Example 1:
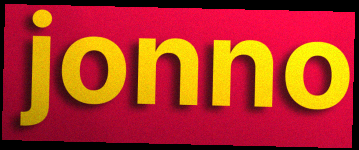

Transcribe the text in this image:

jonno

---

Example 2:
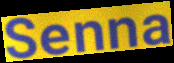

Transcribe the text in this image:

Senna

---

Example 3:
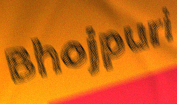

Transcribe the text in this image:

Bhojpuri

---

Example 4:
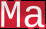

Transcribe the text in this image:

Ma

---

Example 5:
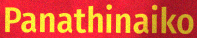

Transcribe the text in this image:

Panathinaiko